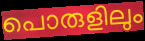
പൊരുളിലും